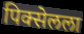
पिक्सेलला